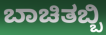
ಬಾಚಿತಬ್ಬಿ